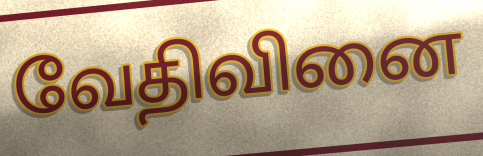
வேதிவினை